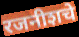
रजनीशचे